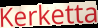
Kerketta